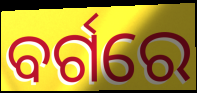
ବର୍ଗରେ